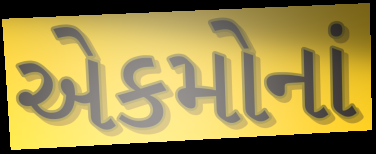
એકમોનાં